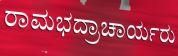
ರಾಮಭದ್ರಾಚಾರ್ಯರು